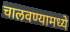
चालवण्यामध्ये